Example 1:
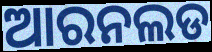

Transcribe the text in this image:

ଆରନଲଡ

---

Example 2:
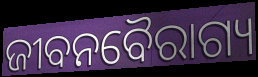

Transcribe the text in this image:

ଜୀବନବୈରାଗ୍ୟ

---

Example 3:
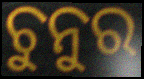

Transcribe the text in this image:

ଚୁନୁର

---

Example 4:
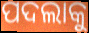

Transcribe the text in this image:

ପଦଲାକୁ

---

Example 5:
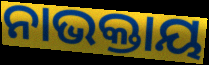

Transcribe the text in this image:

ନାଭକ୍ତାୟ